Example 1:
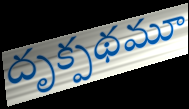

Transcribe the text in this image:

దృక్పథమూ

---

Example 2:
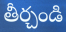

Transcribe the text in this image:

తీర్చండి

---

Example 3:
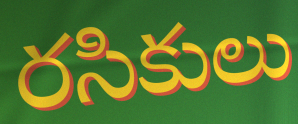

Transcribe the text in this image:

రసికులు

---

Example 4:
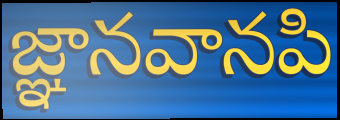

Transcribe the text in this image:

జ్ఞానవానపి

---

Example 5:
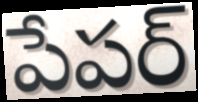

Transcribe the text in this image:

పేపర్